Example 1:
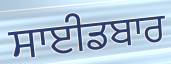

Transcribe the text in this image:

ਸਾਈਡਬਾਰ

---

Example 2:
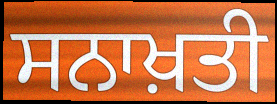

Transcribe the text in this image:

ਸਨਾਖ਼ਤੀ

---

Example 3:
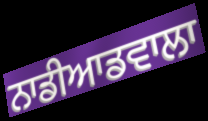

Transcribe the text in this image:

ਨਾਡੀਆਡਵਾਲਾ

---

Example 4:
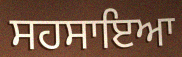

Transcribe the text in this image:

ਸਹਸਾਇਆ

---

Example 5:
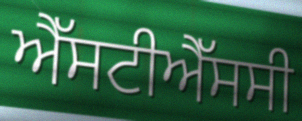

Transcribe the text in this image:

ਐੱਸਟੀਐੱਸਸੀ